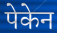
पेकेन